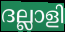
ദല്ലാളി